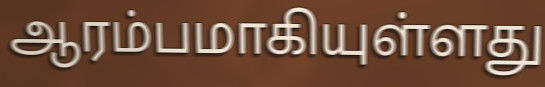
ஆரம்பமாகியுள்ளது